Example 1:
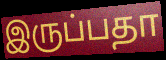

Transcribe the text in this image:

இருப்பதா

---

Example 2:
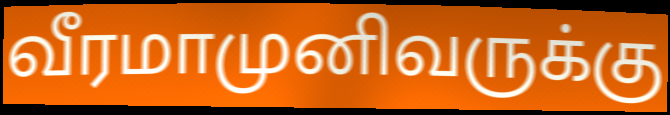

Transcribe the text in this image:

வீரமாமுனிவருக்கு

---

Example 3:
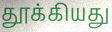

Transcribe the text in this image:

தூக்கியது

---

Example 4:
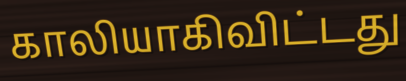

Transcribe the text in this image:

காலியாகிவிட்டது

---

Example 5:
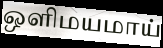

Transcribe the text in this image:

ஒளிமயமாய்